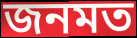
জনমত